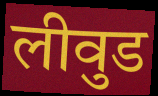
लीवुड